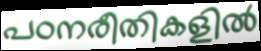
പഠനരീതികളിൽ